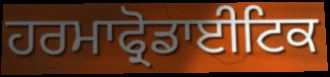
ਹਰਮਾਫ੍ਰੋਡਾਈਟਿਕ